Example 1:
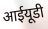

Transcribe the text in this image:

आईयूडी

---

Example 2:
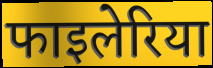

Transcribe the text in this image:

फाइलेरिया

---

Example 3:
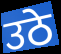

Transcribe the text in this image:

उठे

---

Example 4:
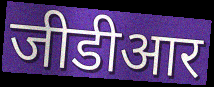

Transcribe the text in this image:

जीडीआर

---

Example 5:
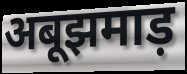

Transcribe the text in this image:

अबूझमाड़